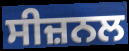
ਸੀਜ਼ਨਲ